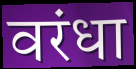
वरंधा